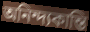
অনিন্দ্যকান্তি